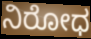
ನಿರೋಧ